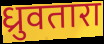
ध्रुवतारा